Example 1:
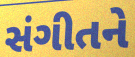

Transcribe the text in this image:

સંગીતને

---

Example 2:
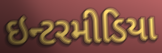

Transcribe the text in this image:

ઇન્ટરમીડિયા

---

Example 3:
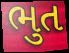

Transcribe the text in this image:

ભુત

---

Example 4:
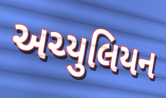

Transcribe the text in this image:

અચ્યુલિયન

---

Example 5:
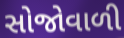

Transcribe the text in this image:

સોજોવાળી